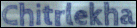
Chitrlekha